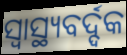
ସ୍ଵାସ୍ଥ୍ୟବର୍ଦ୍ଦକ